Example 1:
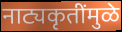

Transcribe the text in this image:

नाट्यकृतींमुळे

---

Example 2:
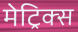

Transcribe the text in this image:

मेट्रिक्‍स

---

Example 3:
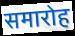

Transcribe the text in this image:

समारोह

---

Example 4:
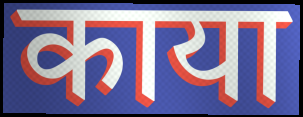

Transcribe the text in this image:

काया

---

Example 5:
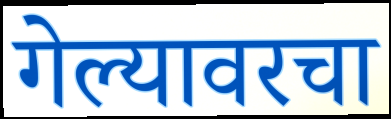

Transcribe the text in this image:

गेल्यावरचा